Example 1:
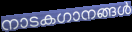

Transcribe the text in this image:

നാടകഗാനങ്ങൾ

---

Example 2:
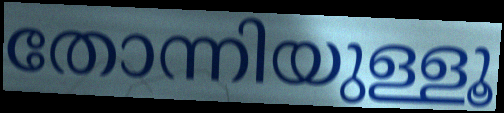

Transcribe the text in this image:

തോന്നിയുള്ളൂ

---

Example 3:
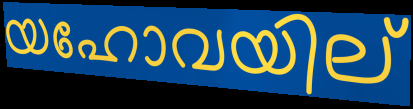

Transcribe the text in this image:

യഹോവയില്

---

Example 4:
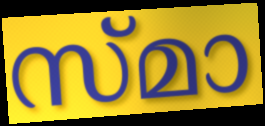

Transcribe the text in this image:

സ്മാ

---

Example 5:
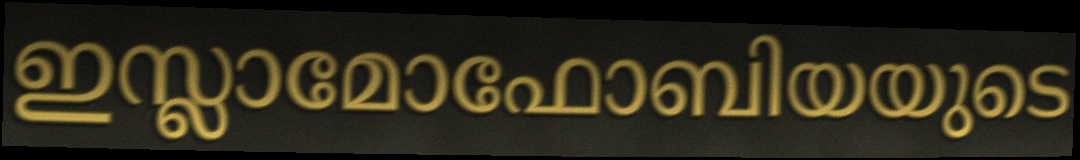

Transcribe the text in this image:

ഇസ്ലാമോഫോബിയയുടെ